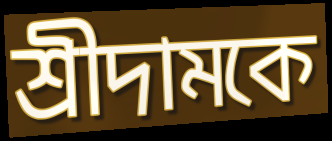
শ্রীদামকে